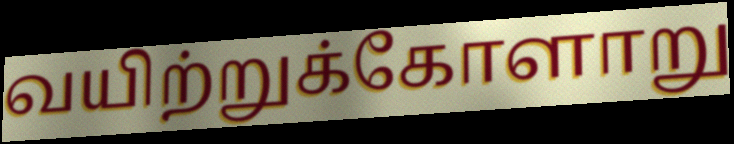
வயிற்றுக்கோளாறு